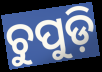
ଚୁପୁଡ଼ି